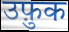
उफ़ुक